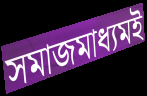
সমাজমাধ্যমই